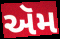
ઍમ